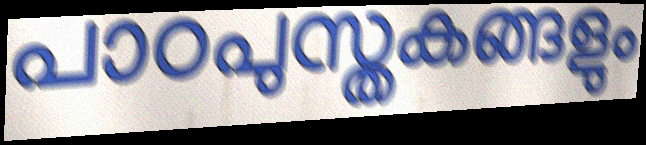
പാഠപുസ്തകങ്ങളും